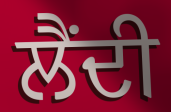
ਲੈਂਦੀ